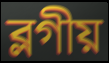
ব্লগীয়